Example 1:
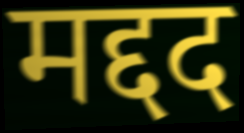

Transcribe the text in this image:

मद्दद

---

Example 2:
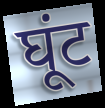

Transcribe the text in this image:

घूंट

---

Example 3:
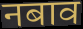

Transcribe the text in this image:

नबाव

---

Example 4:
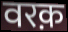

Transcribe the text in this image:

वरक़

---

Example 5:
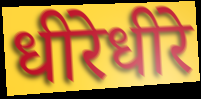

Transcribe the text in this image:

धीरेधीरे